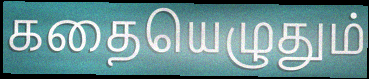
கதையெழுதும்